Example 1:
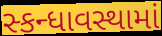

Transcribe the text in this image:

સ્કન્ધાવસ્થામાં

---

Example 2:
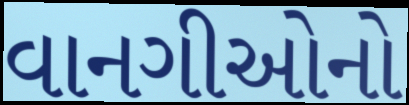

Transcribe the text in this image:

વાનગીઓનો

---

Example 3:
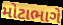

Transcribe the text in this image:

મોટાભાગે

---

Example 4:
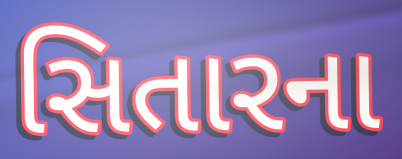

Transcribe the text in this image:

સિતારના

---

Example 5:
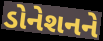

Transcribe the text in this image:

ડોનેશનને